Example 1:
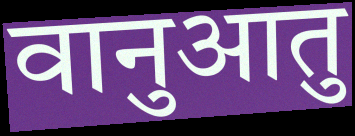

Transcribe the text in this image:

वानुआतु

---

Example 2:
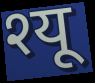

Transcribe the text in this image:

श्यू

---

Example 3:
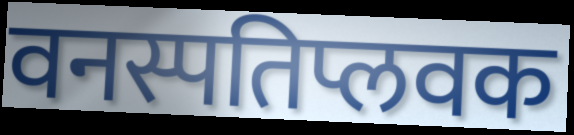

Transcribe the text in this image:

वनस्पतिप्लवक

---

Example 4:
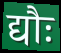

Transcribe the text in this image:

द्यौः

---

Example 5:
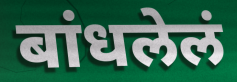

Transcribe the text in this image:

बांधलेलं